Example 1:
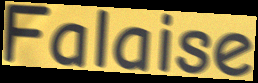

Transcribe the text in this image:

Falaise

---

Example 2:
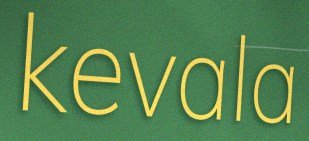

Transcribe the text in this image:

kevala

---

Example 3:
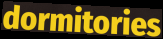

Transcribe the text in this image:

dormitories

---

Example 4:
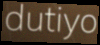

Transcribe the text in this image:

dutiyo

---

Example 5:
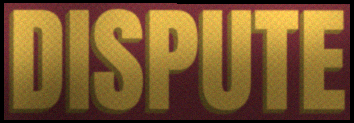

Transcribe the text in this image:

DISPUTE